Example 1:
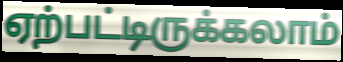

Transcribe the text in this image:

ஏற்பட்டிருக்கலாம்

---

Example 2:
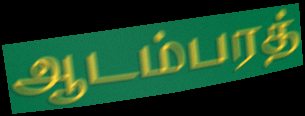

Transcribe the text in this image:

ஆடம்பரத்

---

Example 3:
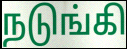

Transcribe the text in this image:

நடுங்கி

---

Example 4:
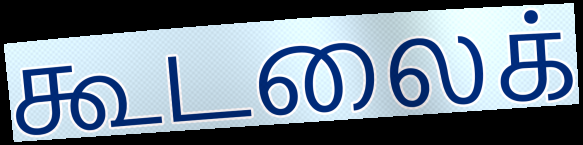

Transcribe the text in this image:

கூடலைக்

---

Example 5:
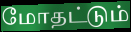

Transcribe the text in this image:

மோதட்டும்